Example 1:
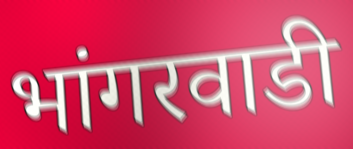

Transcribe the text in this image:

भांगरवाडी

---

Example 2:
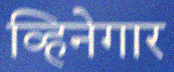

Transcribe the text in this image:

व्हिनेगार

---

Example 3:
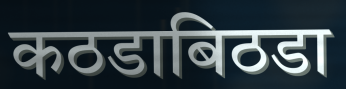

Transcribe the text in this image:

कठडाबिठडा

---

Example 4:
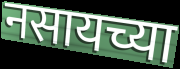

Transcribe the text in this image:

नसायच्या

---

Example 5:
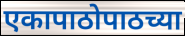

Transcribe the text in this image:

एकापाठोपाठच्या